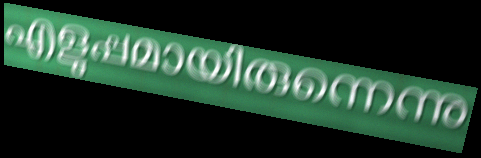
എളുപ്പമായിരുന്നെന്നു